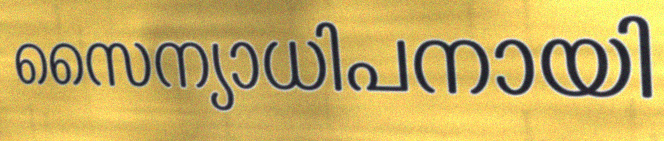
സൈന്യാധിപനായി